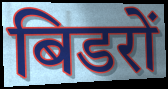
बिडरों